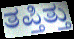
ತಪ್ತಿತ್ತು